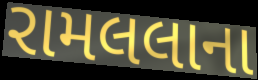
રામલલાના